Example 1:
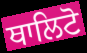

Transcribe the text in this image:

ਥਾਲਿਟੋ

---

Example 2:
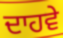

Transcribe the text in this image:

ਦਾਹਵੇ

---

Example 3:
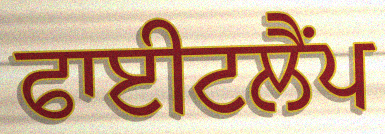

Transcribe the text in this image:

ਫਾਈਟਲੈਂਪ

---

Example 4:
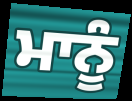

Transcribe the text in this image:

ਮਾਨੂੰ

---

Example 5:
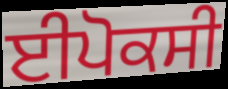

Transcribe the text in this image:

ਈਪੋਕਸੀ